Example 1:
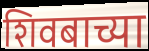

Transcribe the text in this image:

शिवबाच्या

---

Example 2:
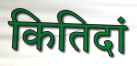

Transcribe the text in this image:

कितिदां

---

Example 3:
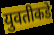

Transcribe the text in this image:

युवतीकडे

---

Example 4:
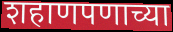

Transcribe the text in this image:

शहाणपणाच्या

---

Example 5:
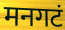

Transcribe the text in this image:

मनगटं